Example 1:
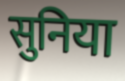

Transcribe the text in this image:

सुनिया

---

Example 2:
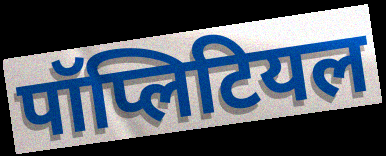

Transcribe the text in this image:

पॉप्लिटियल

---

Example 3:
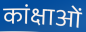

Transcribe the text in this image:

कांक्षाओं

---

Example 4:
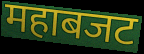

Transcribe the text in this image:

महाबजट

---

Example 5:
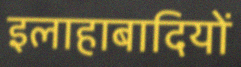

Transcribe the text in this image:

इलाहाबादियों